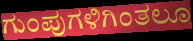
ಗುಂಪುಗಳಿಗಿಂತಲೂ